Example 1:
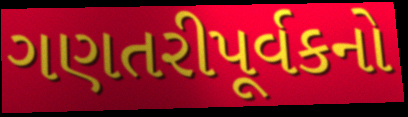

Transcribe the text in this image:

ગણતરીપૂર્વકનો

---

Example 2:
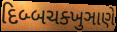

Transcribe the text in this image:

દિબ્બચક્ખુઞાણે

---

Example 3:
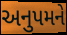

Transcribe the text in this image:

અનુપમને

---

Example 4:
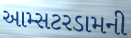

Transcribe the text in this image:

આમ્સટરડામની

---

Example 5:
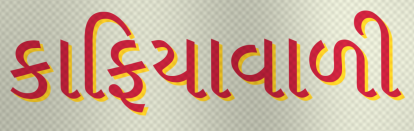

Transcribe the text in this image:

કાફિયાવાળી